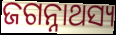
ଜଗନ୍ନାଥସ୍ୟ